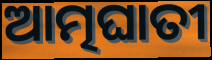
ଆତ୍ମଘାତୀ